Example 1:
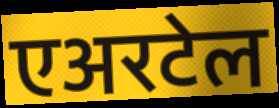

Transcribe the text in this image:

एअरटेल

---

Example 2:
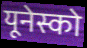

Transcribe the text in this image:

यूनेस्को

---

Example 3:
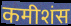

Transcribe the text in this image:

कमीशंस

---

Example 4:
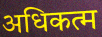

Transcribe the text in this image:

अधिकत्म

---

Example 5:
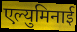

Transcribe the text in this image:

एल्युमिनाई